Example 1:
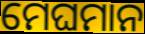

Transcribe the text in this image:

ମେଘମାନ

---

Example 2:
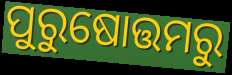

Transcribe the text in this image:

ପୁରୁଷୋତ୍ତମରୁ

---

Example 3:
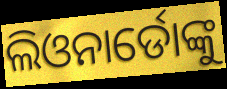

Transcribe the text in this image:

ଲିଓନାର୍ଡୋଙ୍କୁ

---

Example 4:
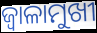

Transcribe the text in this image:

ଜ୍ୱାଳାମୁଖୀ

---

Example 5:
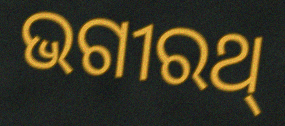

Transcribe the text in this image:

ଭଗୀରଥ୍